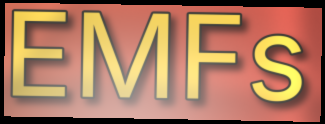
EMFs